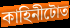
কাহিনীটোত